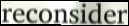
reconsider